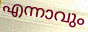
എന്നാവും